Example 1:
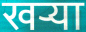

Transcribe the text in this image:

खऱ्या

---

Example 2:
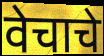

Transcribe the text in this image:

वेचाचे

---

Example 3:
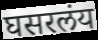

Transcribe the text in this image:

घसरलंय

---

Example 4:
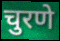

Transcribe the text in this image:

चुरणे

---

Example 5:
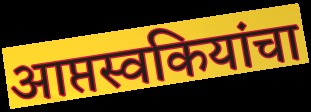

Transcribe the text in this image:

आप्तस्वकियांचा